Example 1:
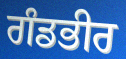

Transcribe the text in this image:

ਗੰਡਭੀਰ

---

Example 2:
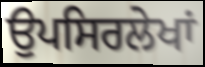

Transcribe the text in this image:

ਉਪਸਿਰਲੇਖਾਂ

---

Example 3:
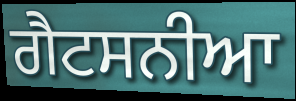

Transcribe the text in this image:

ਗੈਟਸਨੀਆ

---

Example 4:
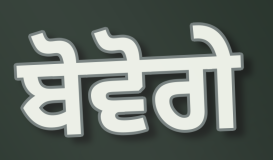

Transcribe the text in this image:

ਬੋਵੋਗੇ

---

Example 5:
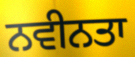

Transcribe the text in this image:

ਨਵੀਨਤਾ